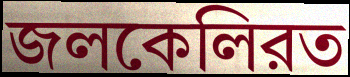
জলকেলিরত